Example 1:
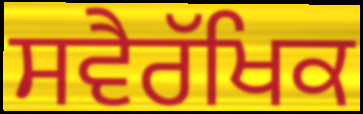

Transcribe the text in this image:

ਸਵੈਰੱਖਿਕ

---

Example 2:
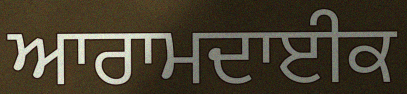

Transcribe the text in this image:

ਆਰਾਮਦਾਈਕ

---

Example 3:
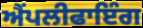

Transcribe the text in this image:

ਐਂਪਲੀਫਾਇੰਗ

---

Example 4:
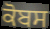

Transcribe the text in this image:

ਕੋਬਸ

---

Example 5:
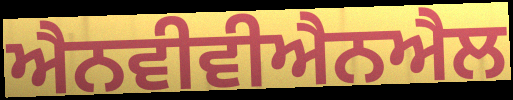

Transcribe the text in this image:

ਐਨਵੀਵੀਐਨਐਲ